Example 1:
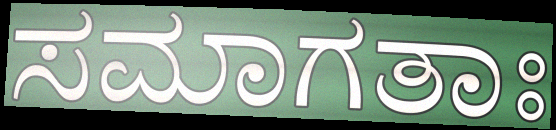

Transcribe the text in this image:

ಸಮಾಗತಾಃ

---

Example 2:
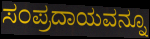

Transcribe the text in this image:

ಸಂಪ್ರದಾಯವನ್ನೂ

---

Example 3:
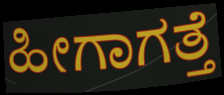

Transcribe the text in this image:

ಹೀಗಾಗತ್ತೆ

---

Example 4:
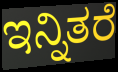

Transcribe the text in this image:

ಇನ್ನಿತರೆ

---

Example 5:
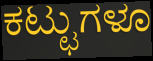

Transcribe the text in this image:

ಕಟ್ಟುಗಳೂ